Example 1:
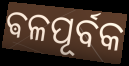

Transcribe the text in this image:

ଵଳପୂର୍ବକ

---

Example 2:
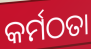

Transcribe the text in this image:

କର୍ମଠତା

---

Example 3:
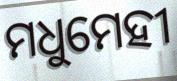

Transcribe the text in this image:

ମଧୁମେହୀ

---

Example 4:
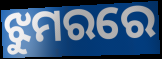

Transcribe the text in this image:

ଝୁମରରେ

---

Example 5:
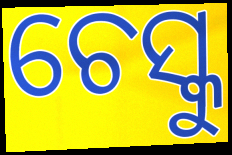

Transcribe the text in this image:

ଚେସ୍କୁ